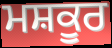
ਮਸ਼ਕੂਰ